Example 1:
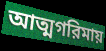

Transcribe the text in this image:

আত্মগরিমায়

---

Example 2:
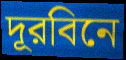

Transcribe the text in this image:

দূরবিনে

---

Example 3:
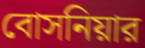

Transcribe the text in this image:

বোসনিয়ার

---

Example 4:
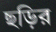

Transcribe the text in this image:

ছড়ির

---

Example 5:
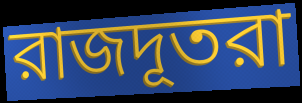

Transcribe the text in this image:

রাজদূতরা